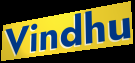
Vindhu